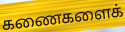
கணைகளைக்